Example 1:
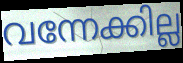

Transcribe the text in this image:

വന്നേക്കില്ല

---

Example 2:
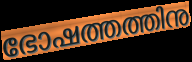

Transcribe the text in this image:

ഭോഷത്തത്തിനു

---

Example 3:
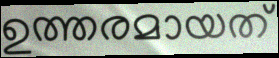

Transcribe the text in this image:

ഉത്തരമായത്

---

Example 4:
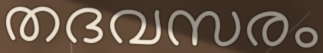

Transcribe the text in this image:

തദവസരം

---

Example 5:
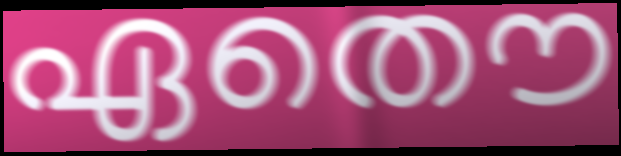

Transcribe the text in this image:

ഏതൌ